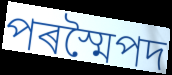
পৰস্মৈপদ